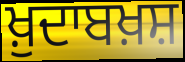
ਖ਼ੁਦਾਬਖ਼ਸ਼